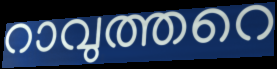
റാവുത്തറെ